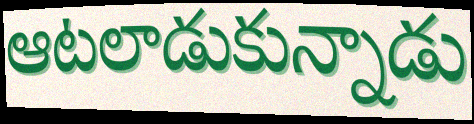
ఆటలాడుకున్నాడు